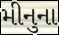
મીનુના